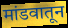
मांडवातून